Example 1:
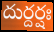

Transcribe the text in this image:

దుర్దర్షః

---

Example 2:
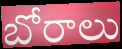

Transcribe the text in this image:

బోరాలు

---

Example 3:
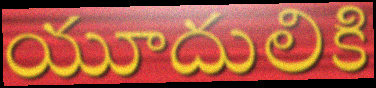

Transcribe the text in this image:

యూదులికి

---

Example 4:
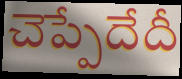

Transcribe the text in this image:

చెప్పేదేదీ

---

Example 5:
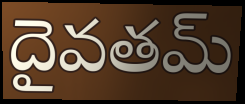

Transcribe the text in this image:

దైవతమ్